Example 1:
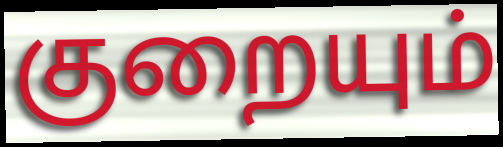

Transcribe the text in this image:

குறையும்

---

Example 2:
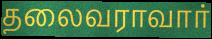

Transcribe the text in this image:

தலைவராவார்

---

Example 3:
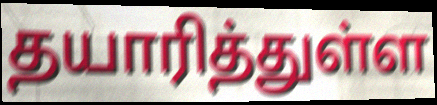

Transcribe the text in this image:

தயாரித்துள்ள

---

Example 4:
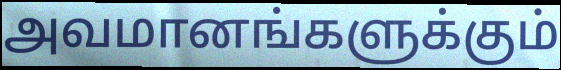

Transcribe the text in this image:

அவமானங்களுக்கும்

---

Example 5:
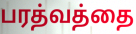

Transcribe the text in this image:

பரத்வத்தை